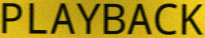
PLAYBACK